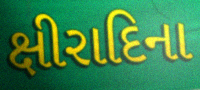
ક્ષીરાદિના